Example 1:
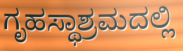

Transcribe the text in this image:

ಗೃಹಸ್ಥಾಶ್ರಮದಲ್ಲಿ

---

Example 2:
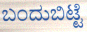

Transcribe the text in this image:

ಬಂದುಬಿಟ್ಟೆ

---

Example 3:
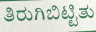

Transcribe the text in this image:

ತಿರುಗಿಬಿಟ್ಟಿತು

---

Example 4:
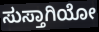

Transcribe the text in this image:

ಸುಸ್ತಾಗಿಯೋ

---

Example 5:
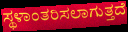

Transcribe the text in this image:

ಸ್ಥಳಾಂತರಿಸಲಾಗುತ್ತದೆ